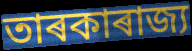
তাৰকাৰাজ্য